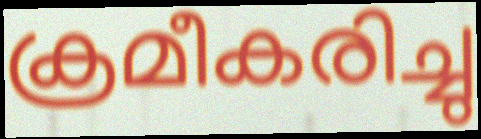
ക്രമീകരിച്ചു